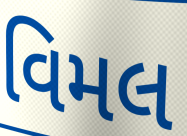
વિમલ